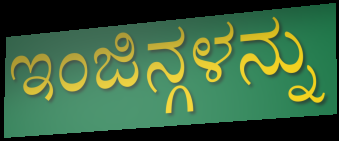
ಇಂಜಿನ್ಗಳನ್ನು